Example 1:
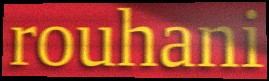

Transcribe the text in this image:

rouhani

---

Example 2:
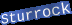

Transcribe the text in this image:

Sturrock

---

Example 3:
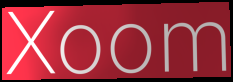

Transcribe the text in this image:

Xoom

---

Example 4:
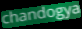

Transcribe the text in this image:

chandogya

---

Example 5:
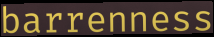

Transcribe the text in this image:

barrenness